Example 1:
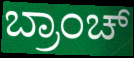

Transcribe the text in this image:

ಬ್ರಾಂಚ್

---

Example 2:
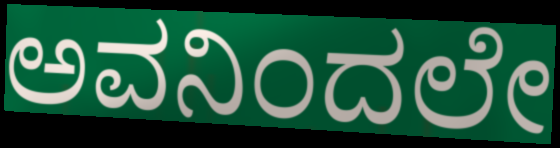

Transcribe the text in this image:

ಅವನಿಂದಲೇ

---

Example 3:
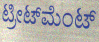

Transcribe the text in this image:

ಟ್ರೀಟ್‌ಮೆಂಟ್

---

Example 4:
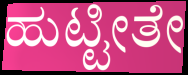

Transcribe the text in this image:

ಹುಟ್ಟೀತೇ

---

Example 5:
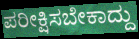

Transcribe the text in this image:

ಪರೀಕ್ಷಿಸಬೇಕಾದ್ದು